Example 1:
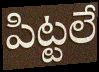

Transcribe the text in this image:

పిట్టలే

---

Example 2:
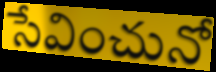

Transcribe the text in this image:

సేవించునో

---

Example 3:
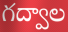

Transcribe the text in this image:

గద్వాల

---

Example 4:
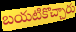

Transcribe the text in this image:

బయటికొచ్చారు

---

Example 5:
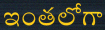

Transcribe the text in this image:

ఇంతలోగా